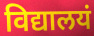
विद्यालयं